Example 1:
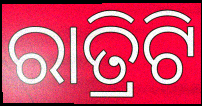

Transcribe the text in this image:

ରାତ୍ରିଟି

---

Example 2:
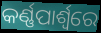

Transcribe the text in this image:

କର୍ଣ୍ଣପାର୍ଶ୍ୱରେ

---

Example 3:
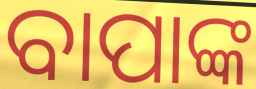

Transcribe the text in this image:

ବାପାଙ୍କ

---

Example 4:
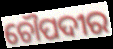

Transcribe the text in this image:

ଚୌପଦୀର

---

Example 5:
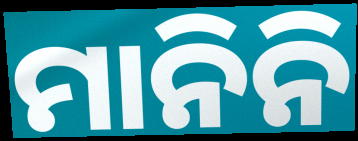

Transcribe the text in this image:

ମାନିନି